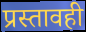
प्रस्तावही